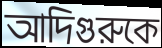
আদিগুরুকে